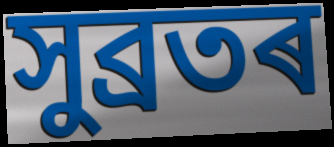
সুব্ৰতৰ